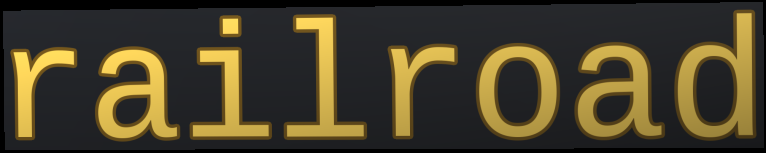
railroad